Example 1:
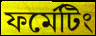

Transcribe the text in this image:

ফর্মেটিং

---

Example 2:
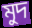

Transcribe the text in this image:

মুদ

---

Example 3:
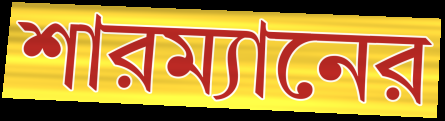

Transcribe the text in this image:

শারম্যানের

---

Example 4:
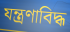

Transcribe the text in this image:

যন্ত্রণাবিদ্ধ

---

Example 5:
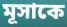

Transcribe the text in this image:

মূসাকে